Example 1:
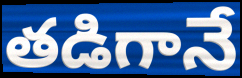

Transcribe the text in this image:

తడిగానే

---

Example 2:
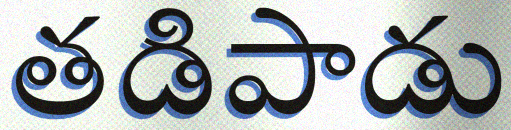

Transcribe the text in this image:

తడిపాడు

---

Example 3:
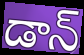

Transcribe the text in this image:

డాన్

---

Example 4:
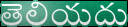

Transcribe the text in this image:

తెలియదు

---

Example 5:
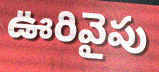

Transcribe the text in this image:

ఊరివైపు